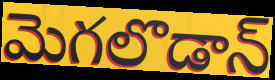
మెగలొడాన్